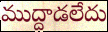
ముద్దాడలేదు